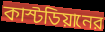
কাস্টডিয়ানের